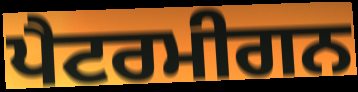
ਪੈਟਰਮੀਗਨ